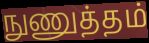
நுணுத்தம்